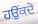
ਹਉਂਕਦੇ